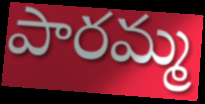
పారమ్మ